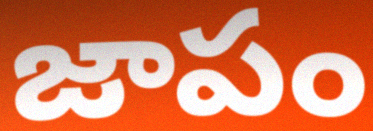
జాపం